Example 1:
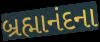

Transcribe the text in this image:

બ્રહ્માનંદના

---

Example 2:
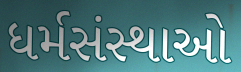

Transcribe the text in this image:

ધર્મસંસ્થાઓ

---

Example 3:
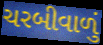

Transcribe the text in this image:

ચરબીવાળું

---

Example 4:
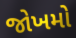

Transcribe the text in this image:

જોખમો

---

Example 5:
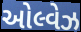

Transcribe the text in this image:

ઓલ્વેઝ